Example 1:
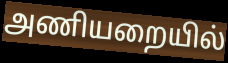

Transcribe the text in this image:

அணியறையில்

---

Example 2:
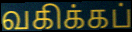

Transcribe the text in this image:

வகிக்கப்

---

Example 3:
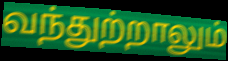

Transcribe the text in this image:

வந்துற்றாலும்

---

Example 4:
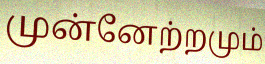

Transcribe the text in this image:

முன்னேற்றமும்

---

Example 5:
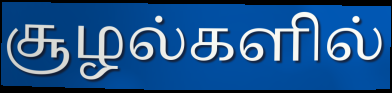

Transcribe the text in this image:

சூழல்களில்